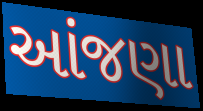
આંજણા